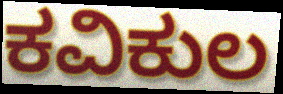
ಕವಿಕುಲ